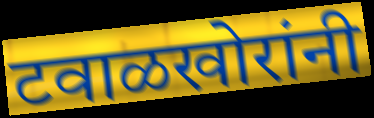
टवाळखोरांनी